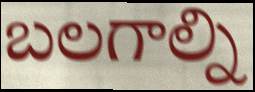
బలగాల్ని